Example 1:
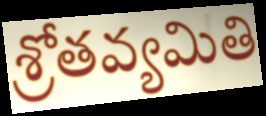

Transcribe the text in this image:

శ్రోతవ్యమితి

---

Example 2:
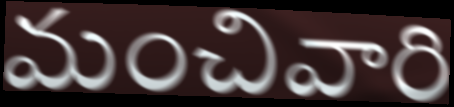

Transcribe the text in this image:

మంచివారి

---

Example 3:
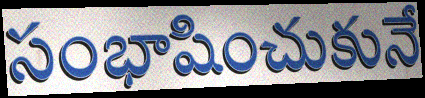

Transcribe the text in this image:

సంభాషించుకునే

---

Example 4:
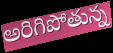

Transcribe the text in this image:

అరిగిపోతున్న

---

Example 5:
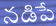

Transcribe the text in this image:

నడిపే